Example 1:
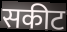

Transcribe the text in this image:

सकीट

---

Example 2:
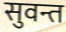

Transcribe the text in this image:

सुवन्त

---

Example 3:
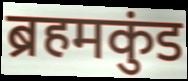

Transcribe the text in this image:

ब्रहमकुंड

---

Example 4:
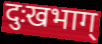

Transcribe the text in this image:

दुःखभाग्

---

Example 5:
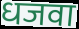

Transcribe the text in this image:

धजवा